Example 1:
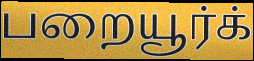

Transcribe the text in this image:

பறையூர்க்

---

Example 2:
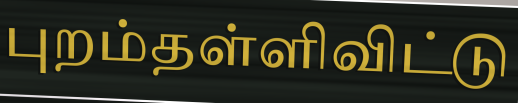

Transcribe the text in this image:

புறம்தள்ளிவிட்டு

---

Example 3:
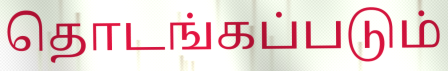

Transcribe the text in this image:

தொடங்கப்படும்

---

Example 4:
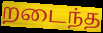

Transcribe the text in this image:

றடைந்த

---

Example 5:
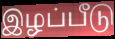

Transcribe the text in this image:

இழப்பீடு